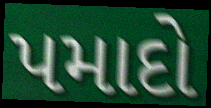
પમાદો